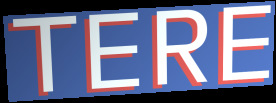
TERE